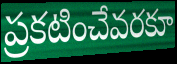
ప్రకటించేవరకూ